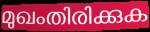
മുഖംതിരിക്കുക